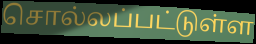
சொல்லப்பட்டுள்ள